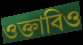
ওক্তাবিও